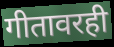
गीतावरही